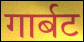
गार्बट